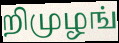
றிமுழங்